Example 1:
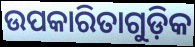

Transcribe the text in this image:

ଉପକାରିତାଗୁଡ଼ିକ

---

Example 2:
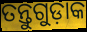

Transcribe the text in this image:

ତନ୍ତୁଗୁଡ଼ାକ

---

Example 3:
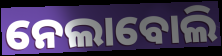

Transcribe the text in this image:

ନେଲାବୋଲି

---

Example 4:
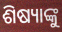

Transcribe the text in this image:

ଶିଷ୍ୟାଙ୍କୁ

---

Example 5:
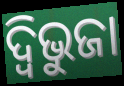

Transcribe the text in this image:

ଦ୍ଵିଭୁଜା